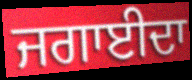
ਜਗਾਈਦਾ